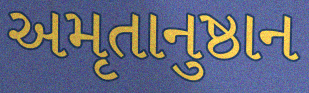
અમૃતાનુષ્ઠાન